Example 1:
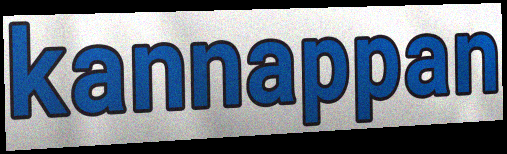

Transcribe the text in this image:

kannappan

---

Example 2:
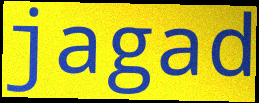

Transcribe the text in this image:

jagad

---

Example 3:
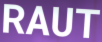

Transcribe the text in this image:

RAUT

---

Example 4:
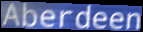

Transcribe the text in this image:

Aberdeen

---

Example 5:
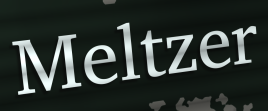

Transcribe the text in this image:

Meltzer